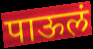
पाऊलं